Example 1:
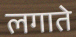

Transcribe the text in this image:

लगाते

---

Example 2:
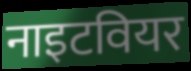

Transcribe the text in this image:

नाइटवियर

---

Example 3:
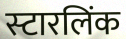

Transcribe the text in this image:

स्‍टारलिंक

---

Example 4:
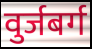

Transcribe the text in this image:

वुर्जबर्ग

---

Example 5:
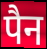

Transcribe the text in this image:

पैन